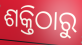
ଶକ୍ତିଠାରୁ